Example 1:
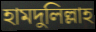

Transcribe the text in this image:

হামদুলিল্লাহ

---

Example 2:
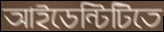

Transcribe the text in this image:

আইডেন্টিটিতে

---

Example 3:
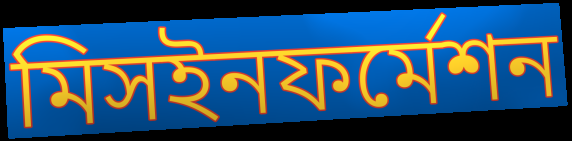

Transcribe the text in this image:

মিসইনফর্মেশন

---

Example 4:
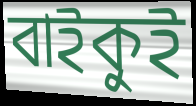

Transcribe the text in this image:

বাইকুই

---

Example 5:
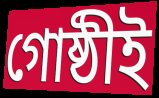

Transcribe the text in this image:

গোষ্ঠীই